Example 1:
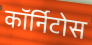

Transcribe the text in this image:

कॉर्निटोस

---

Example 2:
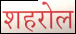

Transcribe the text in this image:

शहरोल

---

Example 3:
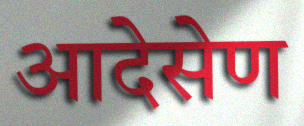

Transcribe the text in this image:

आदेसेण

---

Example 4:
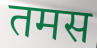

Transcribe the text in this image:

तमस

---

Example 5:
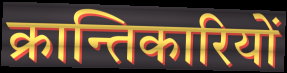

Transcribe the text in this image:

क्रान्तिकारियों